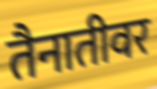
तैनातीवर